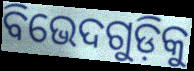
ବିଭେଦଗୁଡ଼ିକୁ